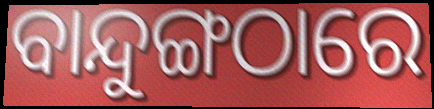
ବାନ୍ଦୁଙ୍ଗଠାରେ